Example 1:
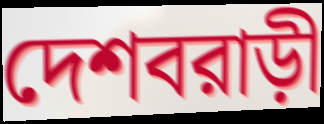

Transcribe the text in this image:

দেশবরাড়ী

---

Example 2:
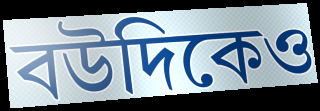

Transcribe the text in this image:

বউদিকেও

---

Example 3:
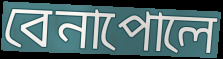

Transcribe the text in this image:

বেনাপোলে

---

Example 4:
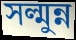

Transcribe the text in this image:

সল্মুন্ন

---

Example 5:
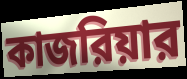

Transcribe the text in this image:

কাজরিয়ার